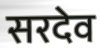
सरदेव